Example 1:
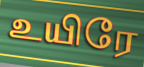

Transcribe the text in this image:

உயிரே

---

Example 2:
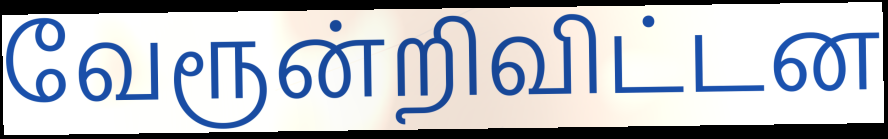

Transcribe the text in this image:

வேரூன்றிவிட்டன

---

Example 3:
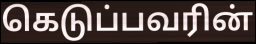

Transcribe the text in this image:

கெடுப்பவரின்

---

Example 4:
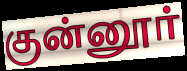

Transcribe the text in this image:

குன்னூர்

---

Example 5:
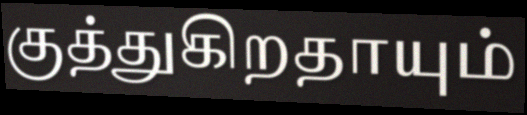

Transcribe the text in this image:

குத்துகிறதாயும்